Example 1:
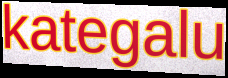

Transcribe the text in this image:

kategalu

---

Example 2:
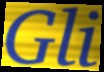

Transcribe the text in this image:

Gli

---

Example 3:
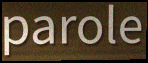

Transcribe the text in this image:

parole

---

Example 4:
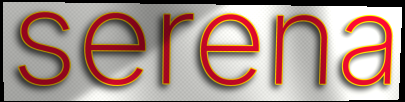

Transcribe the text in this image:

serena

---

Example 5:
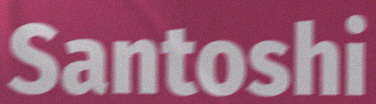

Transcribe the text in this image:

Santoshi